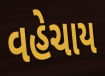
વહેચાય